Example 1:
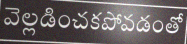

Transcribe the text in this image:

వెల్లడించకపోవడంతో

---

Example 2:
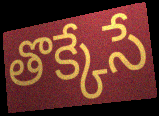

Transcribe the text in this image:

తొక్కేసే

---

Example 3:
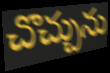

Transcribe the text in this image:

చొచ్చును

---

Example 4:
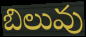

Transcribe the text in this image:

బిలువు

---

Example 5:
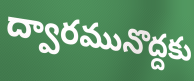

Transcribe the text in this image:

ద్వారమునొద్దకు